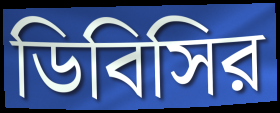
ডিবিসির